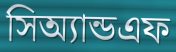
সিঅ্যান্ডএফ